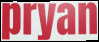
pryan